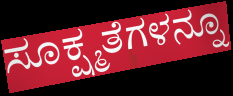
ಸೂಕ್ಷ್ಮತೆಗಳನ್ನೂ